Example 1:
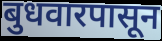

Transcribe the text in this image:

बुधवारपासून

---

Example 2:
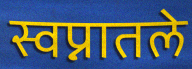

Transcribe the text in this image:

स्वप्नातले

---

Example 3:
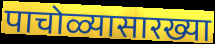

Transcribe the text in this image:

पाचोळ्यासारख्या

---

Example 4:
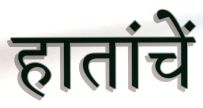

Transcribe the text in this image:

हातांचें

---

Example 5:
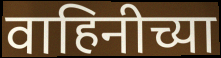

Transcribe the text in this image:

वाहिनीच्या